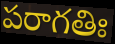
పరాగతిః